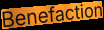
Benefaction